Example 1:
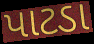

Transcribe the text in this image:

પાટડા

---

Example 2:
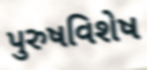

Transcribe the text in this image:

પુરુષવિશેષ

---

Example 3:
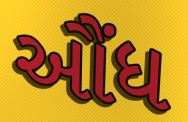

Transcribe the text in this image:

ઔંધ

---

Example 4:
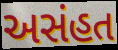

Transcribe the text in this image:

અસંહત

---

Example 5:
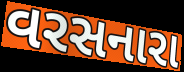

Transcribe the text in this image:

વરસનારા